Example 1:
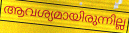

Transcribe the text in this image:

ആവശ്യമായിരുന്നില്ല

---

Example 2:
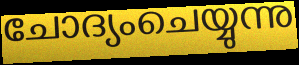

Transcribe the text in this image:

ചോദ്യംചെയ്യുന്നു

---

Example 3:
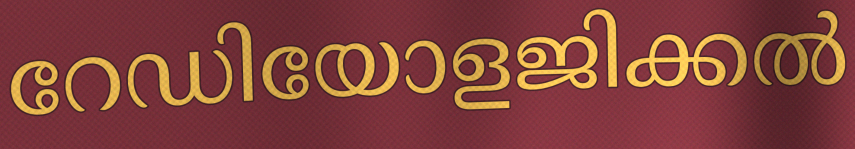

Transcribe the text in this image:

റേഡിയോളജിക്കൽ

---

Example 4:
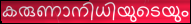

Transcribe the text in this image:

കരുണാനിധിയുടെയും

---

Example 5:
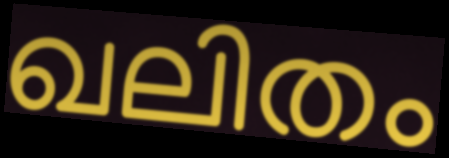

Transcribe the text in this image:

ഖലിതം